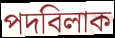
পদবিলাক